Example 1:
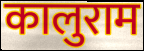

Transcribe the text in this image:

कालुराम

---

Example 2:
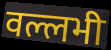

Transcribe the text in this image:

वल्लभी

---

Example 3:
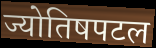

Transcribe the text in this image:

ज्योतिषपटल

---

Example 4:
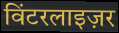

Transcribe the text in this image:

विंटरलाइज़र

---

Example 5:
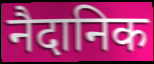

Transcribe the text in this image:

नैदानिक